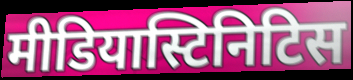
मीडियास्टिनिटिस